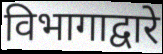
विभागाद्वारे